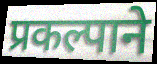
प्रकल्पाने